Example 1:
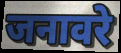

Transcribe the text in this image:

जनावरे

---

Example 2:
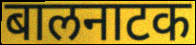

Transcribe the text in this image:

बालनाटक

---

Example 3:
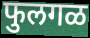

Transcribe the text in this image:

फुलगळ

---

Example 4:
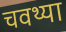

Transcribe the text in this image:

चवथ्या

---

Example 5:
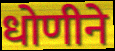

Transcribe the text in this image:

धोणीने